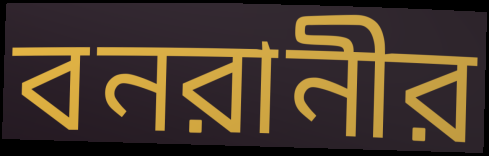
বনরানীর